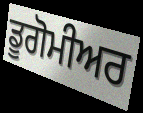
ਡੂਗੋਮੀਅਰ